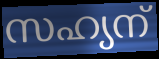
സഹ്യന്